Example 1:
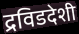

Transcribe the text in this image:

द्रविडदेशी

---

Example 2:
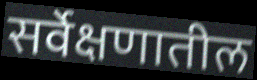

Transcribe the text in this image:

सर्वेक्षणातील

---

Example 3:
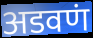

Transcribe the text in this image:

अडवणं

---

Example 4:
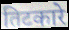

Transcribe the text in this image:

तिटकारे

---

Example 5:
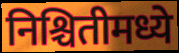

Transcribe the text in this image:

निश्चितीमध्ये